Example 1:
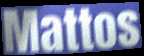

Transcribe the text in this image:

Mattos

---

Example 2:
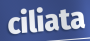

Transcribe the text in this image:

ciliata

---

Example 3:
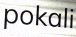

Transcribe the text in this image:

pokali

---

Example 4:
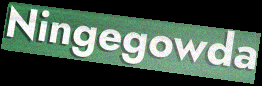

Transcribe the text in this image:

Ningegowda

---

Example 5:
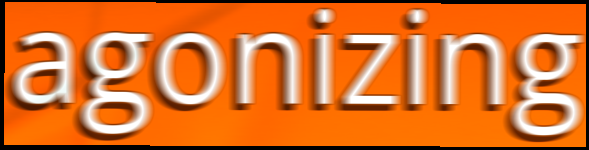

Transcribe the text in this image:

agonizing